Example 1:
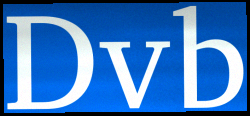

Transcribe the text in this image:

Dvb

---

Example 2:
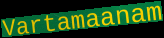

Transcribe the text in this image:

Vartamaanam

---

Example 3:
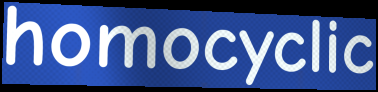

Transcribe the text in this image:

homocyclic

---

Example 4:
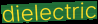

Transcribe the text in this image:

dielectric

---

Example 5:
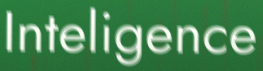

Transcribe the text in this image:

Inteligence